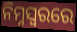
ନିମ୍ନସ୍ୱରରେ